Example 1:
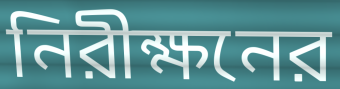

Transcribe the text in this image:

নিরীক্ষনের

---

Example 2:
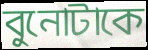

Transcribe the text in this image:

বুনোটাকে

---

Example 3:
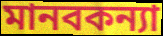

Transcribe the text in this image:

মানবকন্যা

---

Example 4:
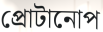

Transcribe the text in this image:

প্রোটানোপ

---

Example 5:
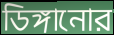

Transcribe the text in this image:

ডিঙ্গানোর